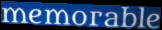
memorable